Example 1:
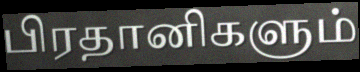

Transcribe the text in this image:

பிரதானிகளும்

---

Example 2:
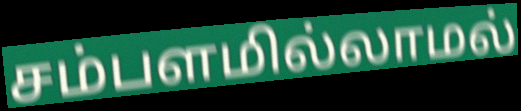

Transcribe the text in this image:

சம்பளமில்லாமல்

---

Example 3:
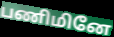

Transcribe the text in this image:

பணிமினே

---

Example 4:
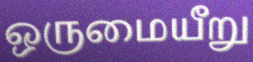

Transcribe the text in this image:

ஒருமையீறு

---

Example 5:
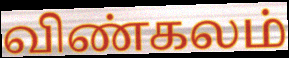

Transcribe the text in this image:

விண்கலம்